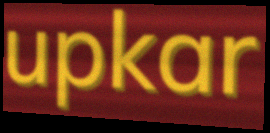
upkar